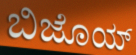
ಬಿಜೊಯ್